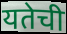
यतेची